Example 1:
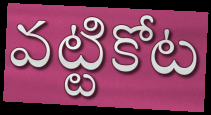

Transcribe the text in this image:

వట్టికోట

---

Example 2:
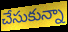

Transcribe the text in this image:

చేసుకున్నా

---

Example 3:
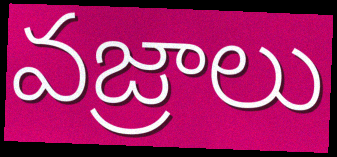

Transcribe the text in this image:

వజ్రాలు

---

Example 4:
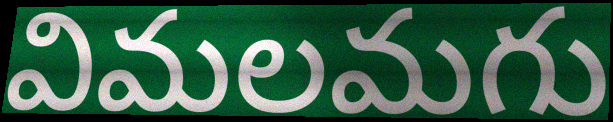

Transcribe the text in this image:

విమలమగు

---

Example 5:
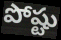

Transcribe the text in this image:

పోష్టు